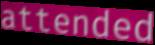
attended